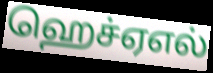
ஹெச்ஏஎல்